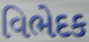
વિભેદક